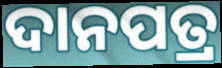
ଦାନପତ୍ର